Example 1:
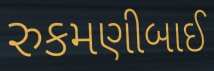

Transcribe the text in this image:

રુકમણીબાઈ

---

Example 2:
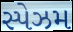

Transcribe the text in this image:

સ્પેઝમ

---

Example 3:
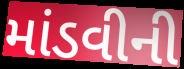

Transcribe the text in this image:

માંડવીની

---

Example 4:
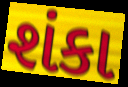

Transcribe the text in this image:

શંકા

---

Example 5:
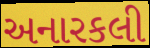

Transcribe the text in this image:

અનારકલી